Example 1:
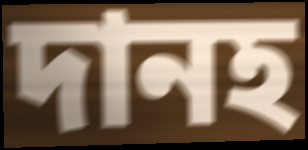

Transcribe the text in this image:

দানহ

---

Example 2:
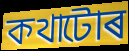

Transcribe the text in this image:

কথাটোৰ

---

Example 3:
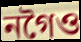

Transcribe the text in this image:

নগৈও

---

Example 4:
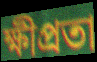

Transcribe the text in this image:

ক্ষীপ্ৰতা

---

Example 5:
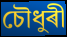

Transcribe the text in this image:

চৌধুৰী